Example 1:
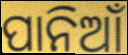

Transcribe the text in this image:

ପାନିଆଁ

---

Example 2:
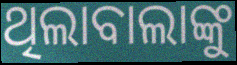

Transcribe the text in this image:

ଥିଲାବାଲାଙ୍କୁ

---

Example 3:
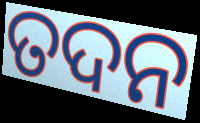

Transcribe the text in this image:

ତଦନ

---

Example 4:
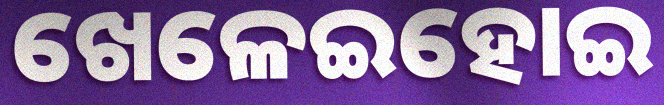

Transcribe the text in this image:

ଖେଳେଇହୋଇ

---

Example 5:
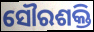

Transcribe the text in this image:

ସୌରଶକ୍ତି